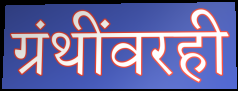
ग्रंथींवरही